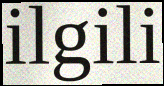
ilgili